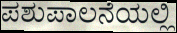
ಪಶುಪಾಲನೆಯಲ್ಲಿ